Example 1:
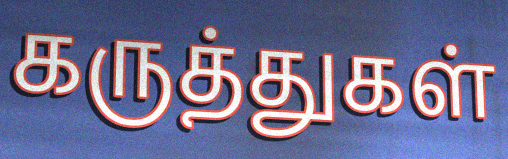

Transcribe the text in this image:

கருத்துகள்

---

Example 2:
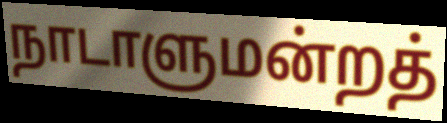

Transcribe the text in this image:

நாடாளுமன்றத்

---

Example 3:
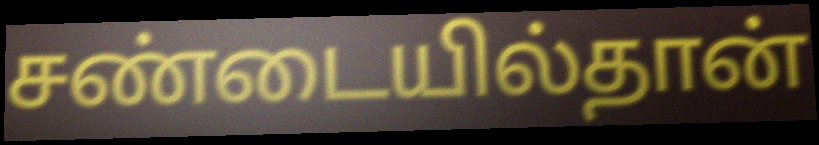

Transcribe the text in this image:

சண்டையில்தான்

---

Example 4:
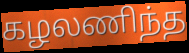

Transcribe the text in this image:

கழலணிந்த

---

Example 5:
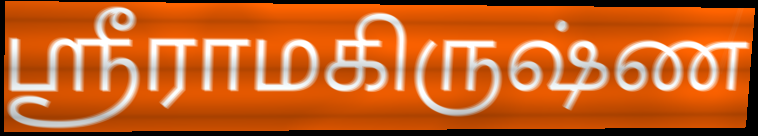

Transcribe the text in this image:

ஸ்ரீராமகிருஷ்ண